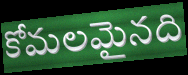
కోమలమైనది